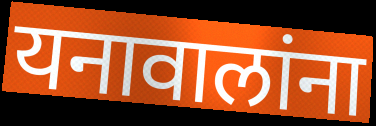
यनावालांना